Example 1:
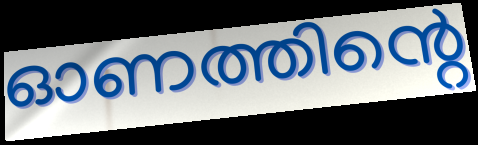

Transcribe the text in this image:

ഓണത്തിന്റെ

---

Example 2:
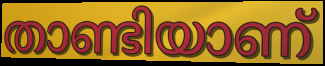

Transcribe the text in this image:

താണ്ടിയാണ്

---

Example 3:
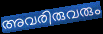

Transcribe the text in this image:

അവരിരുവരും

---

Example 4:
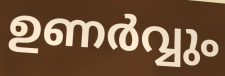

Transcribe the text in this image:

ഉണർവ്വും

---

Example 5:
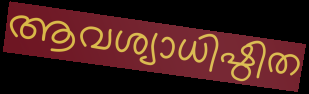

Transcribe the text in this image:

ആവശ്യാധിഷ്ഠിത